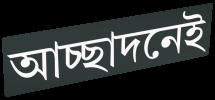
আচ্ছাদনেই